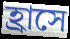
হ্রাসে